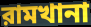
রামখানা